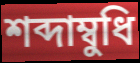
শব্দাম্বুধি